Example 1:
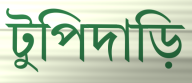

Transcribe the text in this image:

টুপিদাড়ি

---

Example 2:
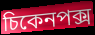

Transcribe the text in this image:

চিকেনপক্স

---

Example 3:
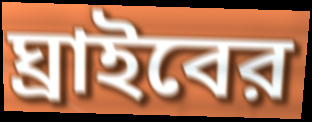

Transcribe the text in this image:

ঘ্রাইবের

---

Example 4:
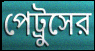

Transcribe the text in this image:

পেট্রুসের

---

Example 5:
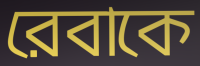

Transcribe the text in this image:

রেবাকে